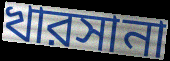
খারসানা